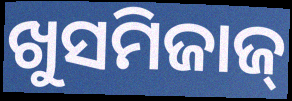
ଖୁସମିଜାଜ୍